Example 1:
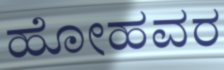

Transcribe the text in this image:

ಹೋಹವರ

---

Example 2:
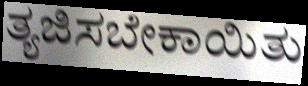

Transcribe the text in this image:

ತ್ಯಜಿಸಬೇಕಾಯಿತು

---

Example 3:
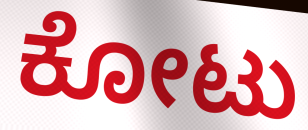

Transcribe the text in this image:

ಕೋಟು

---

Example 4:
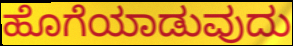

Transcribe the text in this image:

ಹೊಗೆಯಾಡುವುದು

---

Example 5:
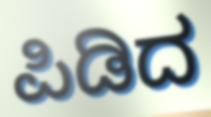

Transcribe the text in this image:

ಪಿಡಿದ